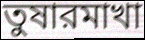
তুষারমাখা